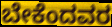
ಬೇಕೆಂದವರ